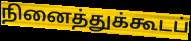
நினைத்துக்கூடப்